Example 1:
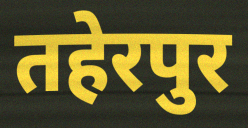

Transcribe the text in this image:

तहेरपुर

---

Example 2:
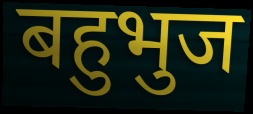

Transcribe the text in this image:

बहुभुज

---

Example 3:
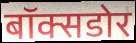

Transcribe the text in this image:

बॉक्सडोर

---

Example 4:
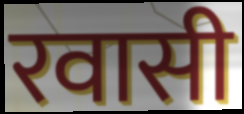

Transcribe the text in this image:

रवासी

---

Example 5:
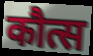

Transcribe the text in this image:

कौत्स